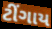
ટીંગાય